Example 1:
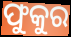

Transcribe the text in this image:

ଫୁକୁର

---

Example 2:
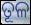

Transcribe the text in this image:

ତୂଳ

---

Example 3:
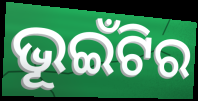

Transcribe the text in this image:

ଭୂଇଁଟିର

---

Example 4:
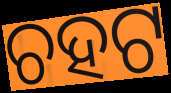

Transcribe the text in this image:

ଚହଟ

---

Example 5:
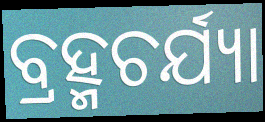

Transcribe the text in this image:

ବ୍ରହ୍ମଚର୍ଯ୍ୟା